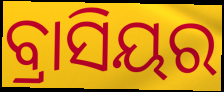
ବ୍ରାସିୟର